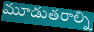
మూడుతరాల్ని